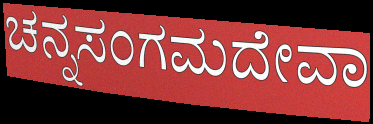
ಚನ್ನಸಂಗಮದೇವಾ